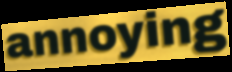
annoying